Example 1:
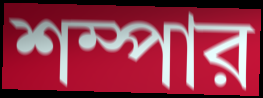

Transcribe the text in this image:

শম্পার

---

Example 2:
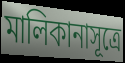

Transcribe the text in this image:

মালিকানাসূত্রে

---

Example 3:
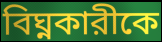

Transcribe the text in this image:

বিঘ্নকারীকে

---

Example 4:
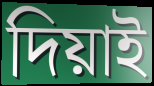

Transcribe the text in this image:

দিয়াই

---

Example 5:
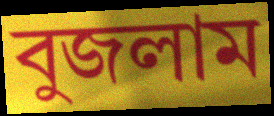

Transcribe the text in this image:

বুজলাম